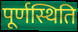
पूर्णस्थिति